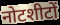
नोटशीटों